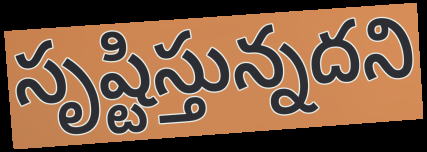
సృష్టిస్తున్నదని